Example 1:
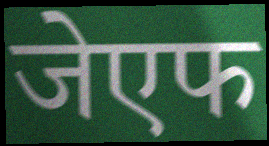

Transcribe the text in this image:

जेएफ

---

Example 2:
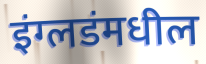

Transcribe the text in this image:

इंग्लडंमधील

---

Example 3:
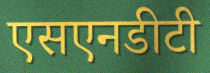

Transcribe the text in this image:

एसएनडीटी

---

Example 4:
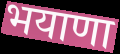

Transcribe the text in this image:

भयाणा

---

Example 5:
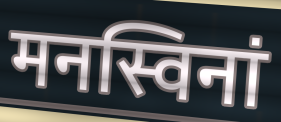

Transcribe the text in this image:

मनस्विनां